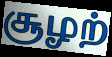
சூழற்